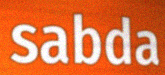
sabda